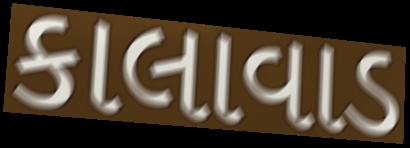
કાલાવાડ